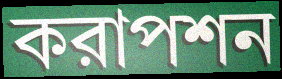
করাপশন